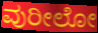
ವುರೀಲೋ